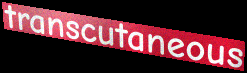
transcutaneous